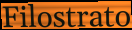
Filostrato